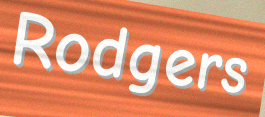
Rodgers